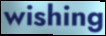
wishing